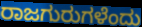
ರಾಜಗುರುಗಳೆಂದು